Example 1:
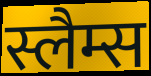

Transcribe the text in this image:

स्लैम्स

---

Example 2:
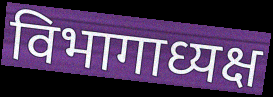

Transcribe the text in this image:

विभागाध्यक्ष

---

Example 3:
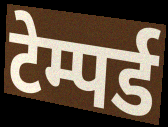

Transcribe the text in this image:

टेम्पर्ड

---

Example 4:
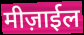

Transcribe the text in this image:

मीज़ाईल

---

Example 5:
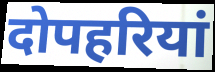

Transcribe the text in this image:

दोपहरियां